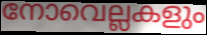
നോവെല്ലകളും